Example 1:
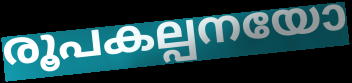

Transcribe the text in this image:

രൂപകല്പനയോ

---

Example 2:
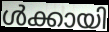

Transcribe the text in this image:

ൾക്കായി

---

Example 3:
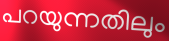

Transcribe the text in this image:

പറയുന്നതിലും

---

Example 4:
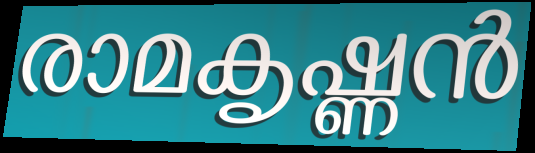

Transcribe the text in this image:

രാമകൃഷ്ണൻ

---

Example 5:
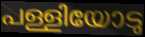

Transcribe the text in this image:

പള്ളിയോടു